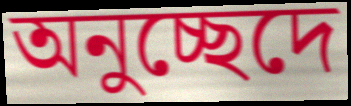
অনুচ্ছেদে